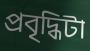
প্রবৃদ্ধিটা